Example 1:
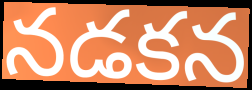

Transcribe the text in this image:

నడకన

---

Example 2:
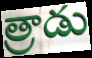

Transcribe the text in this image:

త్రాడు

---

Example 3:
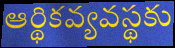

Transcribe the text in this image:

ఆర్థికవ్యవస్థకు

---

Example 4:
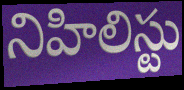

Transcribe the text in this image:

నిహిలిస్టు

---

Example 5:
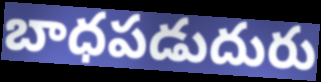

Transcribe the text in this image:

బాధపడుదురు